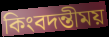
কিংবদন্তীময়